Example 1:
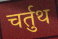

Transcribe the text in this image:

चर्तुथ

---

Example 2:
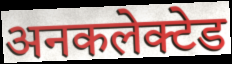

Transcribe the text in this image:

अनकलेक्टेड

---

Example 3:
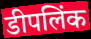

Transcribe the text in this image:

डीपलिंक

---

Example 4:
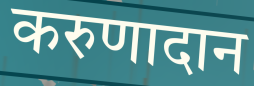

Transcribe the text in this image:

करुणादान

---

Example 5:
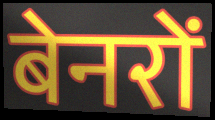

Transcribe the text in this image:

बेनरों